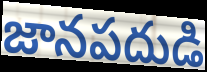
జానపదుడి